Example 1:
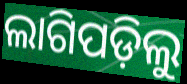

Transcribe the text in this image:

ଲାଗିପଡ଼ିଲୁ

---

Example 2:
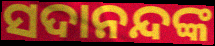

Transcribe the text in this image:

ସଦାନନ୍ଦଙ୍କ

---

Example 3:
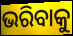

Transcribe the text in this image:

ଭରିବାକୁ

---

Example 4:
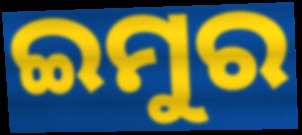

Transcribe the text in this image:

ଇମୁର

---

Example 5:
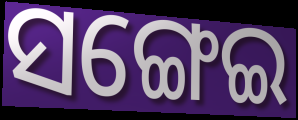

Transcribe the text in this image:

ସଙ୍ଗେଇ